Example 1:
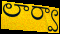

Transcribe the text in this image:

లార్వా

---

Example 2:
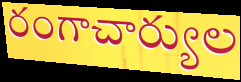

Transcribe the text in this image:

రంగాచార్యుల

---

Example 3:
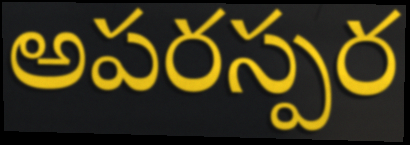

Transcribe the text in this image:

అపరస్పర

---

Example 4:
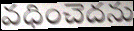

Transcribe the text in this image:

వధించెదను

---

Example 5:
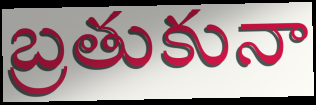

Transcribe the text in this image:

బ్రతుకునా